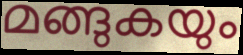
മങ്ങുകയും